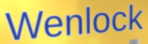
Wenlock